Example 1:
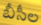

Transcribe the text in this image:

బీసీల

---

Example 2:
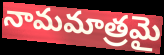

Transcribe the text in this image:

నామమాత్రమై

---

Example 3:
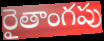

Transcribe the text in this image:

రైతాంగపు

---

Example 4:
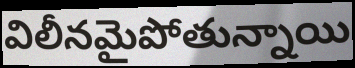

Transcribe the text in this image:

విలీనమైపోతున్నాయి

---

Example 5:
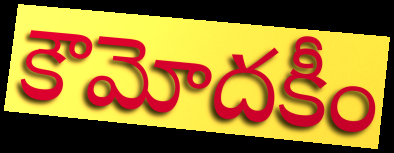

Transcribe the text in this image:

కౌమోదకీం